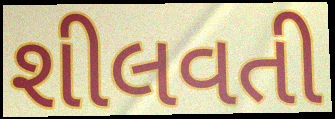
શીલવતી